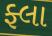
ફ્લા